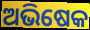
ଅଭିଷେକ